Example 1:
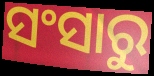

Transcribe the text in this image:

ସଂସାରୁ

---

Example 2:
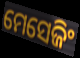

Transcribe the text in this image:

ମେସେଜିଂ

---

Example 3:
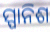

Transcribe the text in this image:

ସ୍ପାନିଶ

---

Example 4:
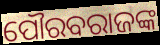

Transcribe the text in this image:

ପୌରବରାଜଙ୍କ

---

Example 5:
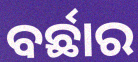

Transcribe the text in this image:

ବର୍ଛାର